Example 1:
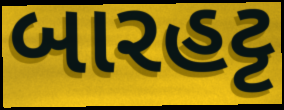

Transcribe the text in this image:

બારહટ્ટ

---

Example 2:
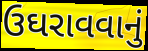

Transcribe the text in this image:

ઉઘરાવવાનું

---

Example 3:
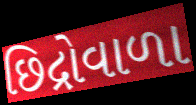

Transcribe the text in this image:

છિદ્રોવાળા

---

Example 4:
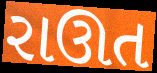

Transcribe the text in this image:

રાઊત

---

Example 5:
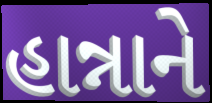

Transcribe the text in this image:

હાન્નાને